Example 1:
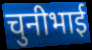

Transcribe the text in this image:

चुनीभाई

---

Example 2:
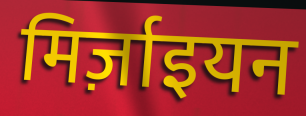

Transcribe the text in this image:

मिर्ज़ाइयन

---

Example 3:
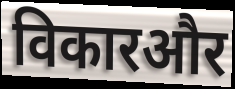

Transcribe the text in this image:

विकारऔर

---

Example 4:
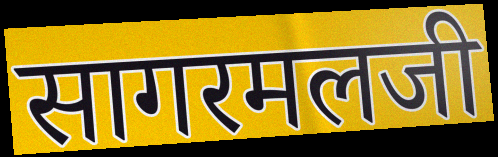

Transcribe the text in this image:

सागरमलजी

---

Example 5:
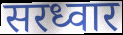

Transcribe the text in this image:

सरध्वार